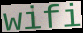
wifi